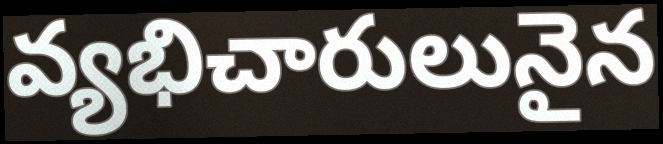
వ్యభిచారులునైన